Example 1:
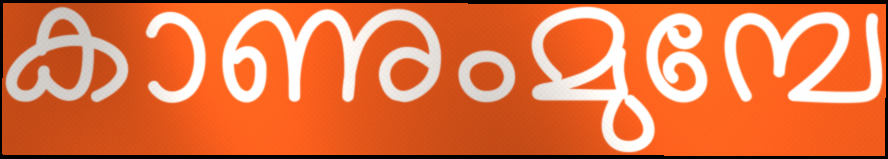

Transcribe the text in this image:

കാണുംമുമ്പേ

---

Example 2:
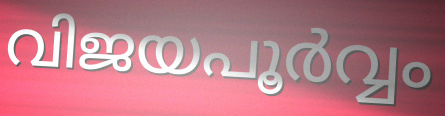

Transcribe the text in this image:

വിജയപൂർവ്വം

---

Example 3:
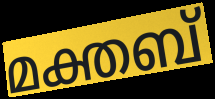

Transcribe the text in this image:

മക്തബ്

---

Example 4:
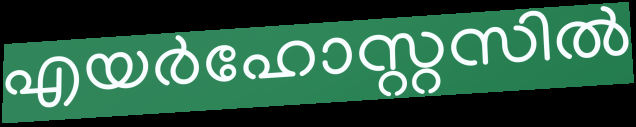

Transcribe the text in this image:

എയർഹോസ്റ്റസിൽ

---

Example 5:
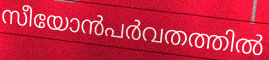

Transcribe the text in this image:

സീയോൻപർവതത്തിൽ